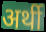
अर्थी